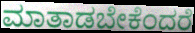
ಮಾತಾಡಬೇಕೆಂದರೆ